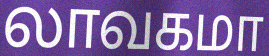
லாவகமா